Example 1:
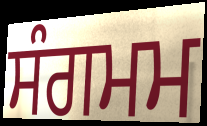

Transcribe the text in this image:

ਸੰਗਮਮ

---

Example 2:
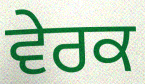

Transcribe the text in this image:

ਵੇਰਕ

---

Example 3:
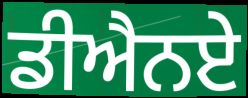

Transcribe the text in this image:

ਡੀਐਨਏ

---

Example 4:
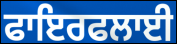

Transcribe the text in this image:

ਫਾਇਰਫਲਾਈ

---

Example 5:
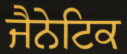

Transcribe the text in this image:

ਜੈਨੇਟਿਕ